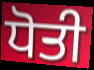
ਧੋਤੀ